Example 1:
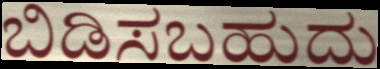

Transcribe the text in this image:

ಬಿಡಿಸಬಹುದು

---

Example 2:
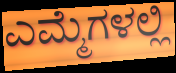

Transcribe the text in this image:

ಎಮ್ಮೆಗಳಲ್ಲಿ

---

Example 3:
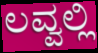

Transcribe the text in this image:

ಲವ್ವಲ್ಲಿ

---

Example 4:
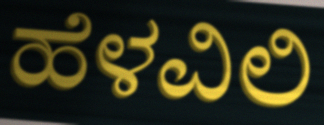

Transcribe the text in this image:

ಹೆಳವಿಲಿ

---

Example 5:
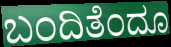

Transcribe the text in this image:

ಬಂದಿತೆಂದೂ